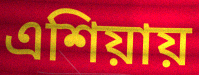
এশিয়ায়